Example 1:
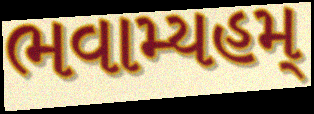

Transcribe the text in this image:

ભવામ્યહમ્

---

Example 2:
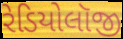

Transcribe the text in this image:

રેડિયોલૉજી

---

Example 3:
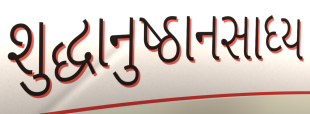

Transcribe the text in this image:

શુદ્ધાનુષ્ઠાનસાધ્ય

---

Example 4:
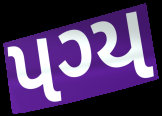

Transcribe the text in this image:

પગ્ય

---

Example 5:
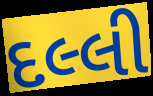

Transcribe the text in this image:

દલ્લી